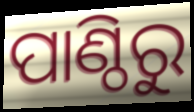
ପାଣ୍ଠିରୁ